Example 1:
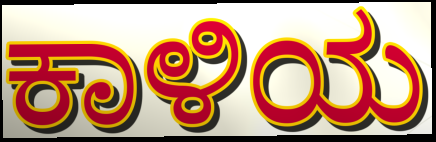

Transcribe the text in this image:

ಕಾಳಿಯ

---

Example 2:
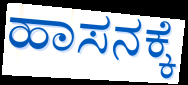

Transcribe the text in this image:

ಹಾಸನಕ್ಕೆ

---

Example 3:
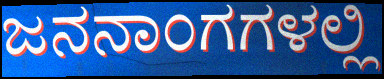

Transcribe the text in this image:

ಜನನಾಂಗಗಳಲ್ಲಿ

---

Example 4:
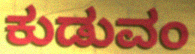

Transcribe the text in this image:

ಕುಡುವಂ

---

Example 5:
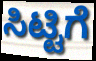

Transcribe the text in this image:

ಸಿಟ್ಟಿಗೆ